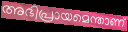
അഭിപ്രായമെന്താണ്